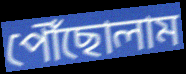
পৌঁছোলাম